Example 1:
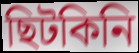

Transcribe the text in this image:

ছিটকিনি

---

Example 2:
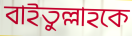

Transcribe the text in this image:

বাইতুল্লাহকে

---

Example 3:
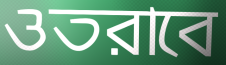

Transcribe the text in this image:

ওতরাবে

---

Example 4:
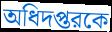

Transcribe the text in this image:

অধিদপ্তরকে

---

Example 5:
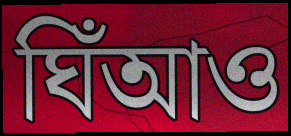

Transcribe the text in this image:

ঘিঁআও